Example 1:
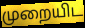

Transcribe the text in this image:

முறையிட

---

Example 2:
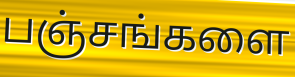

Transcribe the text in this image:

பஞ்சங்களை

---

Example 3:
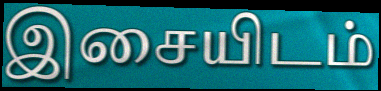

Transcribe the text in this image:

இசையிடம்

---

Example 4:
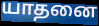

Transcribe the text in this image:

யாதனை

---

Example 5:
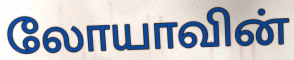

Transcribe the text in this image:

லோயாவின்